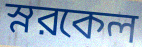
স্নরকেল